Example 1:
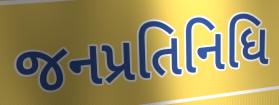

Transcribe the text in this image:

જનપ્રતિનિધિ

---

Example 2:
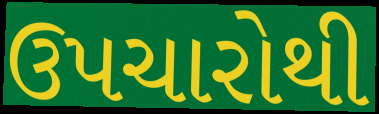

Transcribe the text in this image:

ઉપચારોથી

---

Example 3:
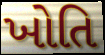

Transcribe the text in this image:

ખોતિ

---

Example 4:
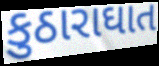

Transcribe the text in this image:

કુઠારાઘાત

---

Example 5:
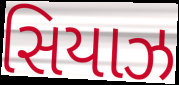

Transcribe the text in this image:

સિયાઝ